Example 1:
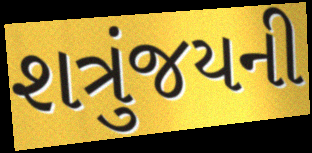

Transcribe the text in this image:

શત્રુંજયની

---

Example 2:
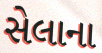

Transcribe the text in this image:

સેલાના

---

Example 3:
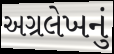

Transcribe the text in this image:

અગ્રલેખનું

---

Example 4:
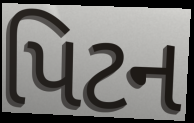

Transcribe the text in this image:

પિટન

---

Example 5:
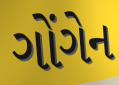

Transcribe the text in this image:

ગોંગેન